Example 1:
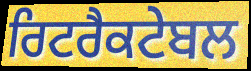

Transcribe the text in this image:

ਰਿਟਰੈਕਟੇਬਲ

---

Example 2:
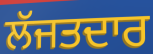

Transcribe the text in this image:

ਲੱਜਤਦਾਰ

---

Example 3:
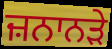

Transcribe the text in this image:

ਜ਼ਨਾਨੜੇ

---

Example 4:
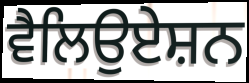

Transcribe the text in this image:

ਵੈਲਿਉਏਸ਼ਨ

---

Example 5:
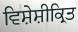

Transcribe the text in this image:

ਵਿਸ਼ੇਸ਼ੀਕ੍ਰਿਤ